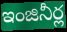
ఇంజినీర్ల